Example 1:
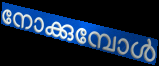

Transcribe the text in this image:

നോക്കുമ്പോൾ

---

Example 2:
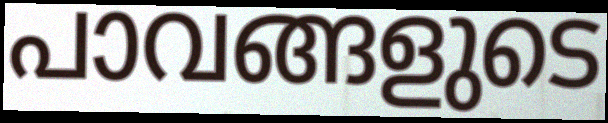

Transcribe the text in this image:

പാവങ്ങളുടെ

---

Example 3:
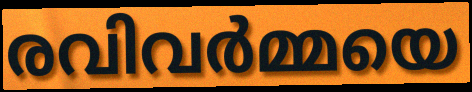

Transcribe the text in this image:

രവിവർമ്മയെ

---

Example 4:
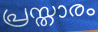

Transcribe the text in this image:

പ്രസ്താരം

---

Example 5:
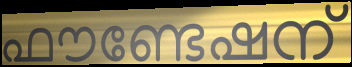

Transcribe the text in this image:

ഫൗണ്ടേഷന്